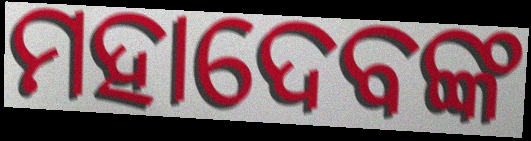
ମହାଦେବଙ୍କ